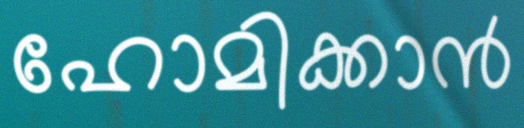
ഹോമിക്കാൻ